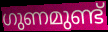
ഗുണമുണ്ട്